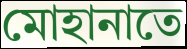
মোহানাতে